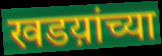
खडय़ांच्या